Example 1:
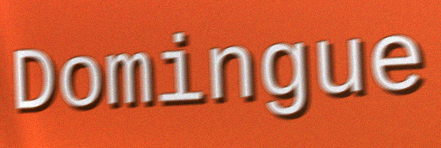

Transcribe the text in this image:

Domingue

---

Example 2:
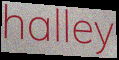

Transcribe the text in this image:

halley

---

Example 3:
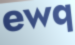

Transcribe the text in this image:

ewq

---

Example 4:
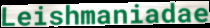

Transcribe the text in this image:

Leishmaniadae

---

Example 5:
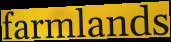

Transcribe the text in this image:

farmlands